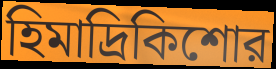
হিমাদ্রিকিশোর